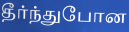
தீர்ந்துபோன